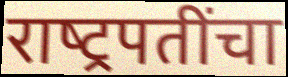
राष्ट्रपतींचा